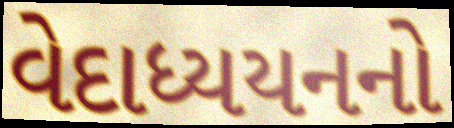
વેદાધ્યયનનો